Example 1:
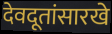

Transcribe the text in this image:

देवदूतांसारखे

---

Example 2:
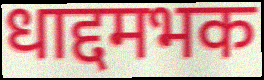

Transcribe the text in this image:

धाद्दमभक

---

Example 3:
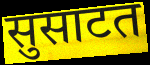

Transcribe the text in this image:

सुसाटत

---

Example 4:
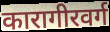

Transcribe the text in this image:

कारागीरवर्ग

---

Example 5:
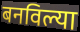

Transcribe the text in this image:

बनविल्या